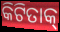
କିଟିତାକ୍